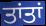
ਤਾਂਤਾਂ